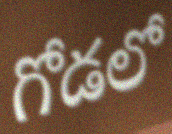
గోడలో